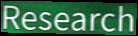
Research